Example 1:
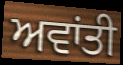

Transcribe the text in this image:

ਅਵਾਂਤੀ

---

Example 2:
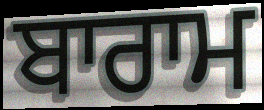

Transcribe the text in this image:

ਬਾਰਾਮ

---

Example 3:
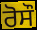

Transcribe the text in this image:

ਰੋਸੌ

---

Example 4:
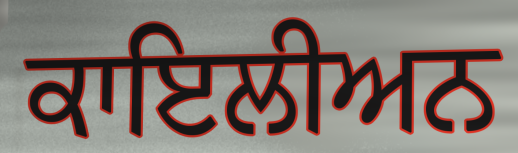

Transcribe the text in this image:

ਕਾਇਲੀਅਨ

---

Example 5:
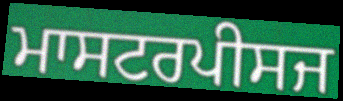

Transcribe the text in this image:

ਮਾਸਟਰਪੀਸਜ